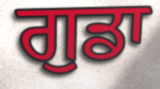
ਗੁਡਾ